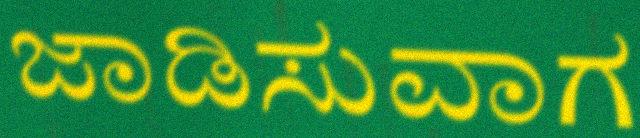
ಜಾಡಿಸುವಾಗ